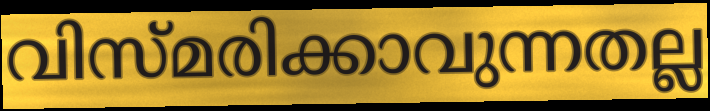
വിസ്മരിക്കാവുന്നതല്ല